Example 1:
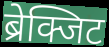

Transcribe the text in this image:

ब्रेक्जिट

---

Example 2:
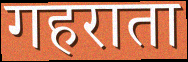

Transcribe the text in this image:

गहराता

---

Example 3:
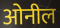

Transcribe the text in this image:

ओनील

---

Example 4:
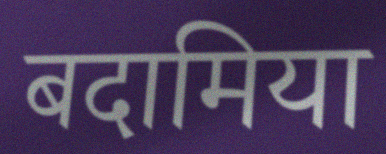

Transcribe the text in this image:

बदामिया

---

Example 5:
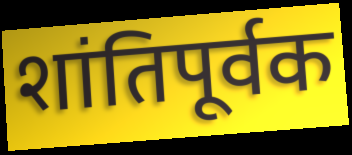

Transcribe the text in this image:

शांतिपूर्वक